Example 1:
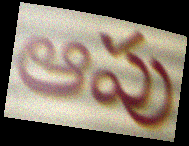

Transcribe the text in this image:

ఆపు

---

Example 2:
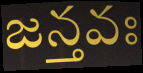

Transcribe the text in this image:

జన్తవః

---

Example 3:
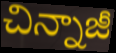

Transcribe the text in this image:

చిన్నాజీ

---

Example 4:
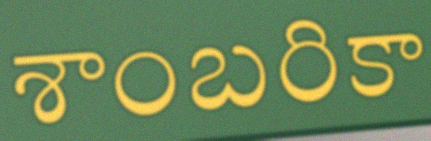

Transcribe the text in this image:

శాంబరికా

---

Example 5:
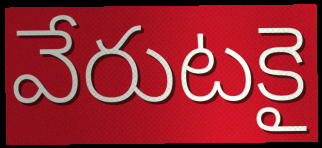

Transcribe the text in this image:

వేరుటకై